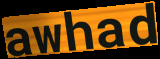
awhad